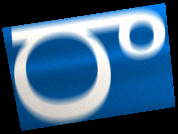
రా